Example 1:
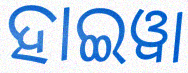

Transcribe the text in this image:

ହାଇୱା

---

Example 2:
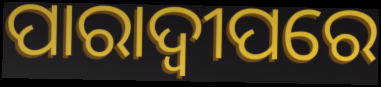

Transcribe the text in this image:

ପାରାଦ୍ବୀପରେ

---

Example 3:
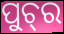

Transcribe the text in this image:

ପୁଚ୍‍ର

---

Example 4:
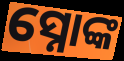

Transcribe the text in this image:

ସ୍ନୋଙ୍କ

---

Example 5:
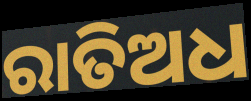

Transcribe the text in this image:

ରାତିଅଧ